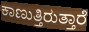
ಕಾಣುತ್ತಿರುತ್ತಾರೆ